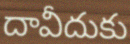
దావీదుకు